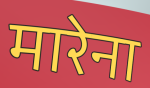
मारेना